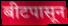
बीटपासून